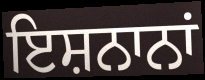
ਇਸ਼ਨਾਨਾਂ